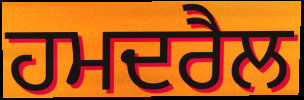
ਹਮਦਰੈਲ